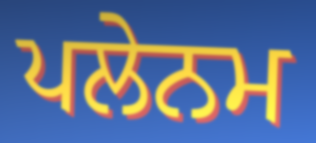
ਪਲੇਨਮ